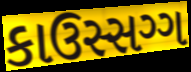
કાઉસ્સગ્ગ